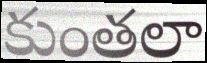
కుంతలా